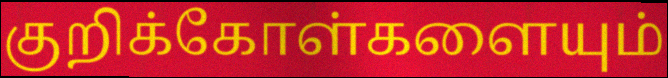
குறிக்கோள்களையும்